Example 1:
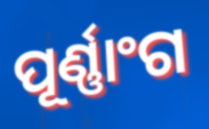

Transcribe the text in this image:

ପୂର୍ଣ୍ଣାଂଗ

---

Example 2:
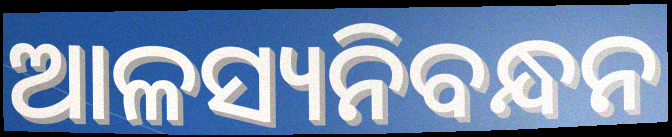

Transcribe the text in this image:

ଆଳସ୍ୟନିବନ୍ଧନ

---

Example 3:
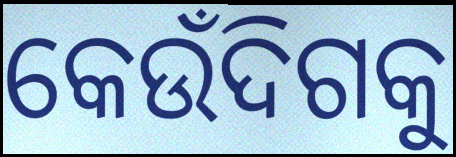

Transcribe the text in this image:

କେଉଁଦିଗକୁ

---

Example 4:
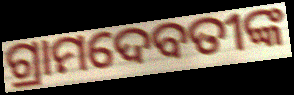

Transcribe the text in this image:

ଗ୍ରାମଦେବତୀଙ୍କ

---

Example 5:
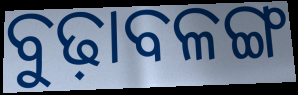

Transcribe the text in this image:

ବୁଢ଼ାବଳଙ୍ଗ